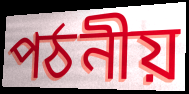
পঠনীয়